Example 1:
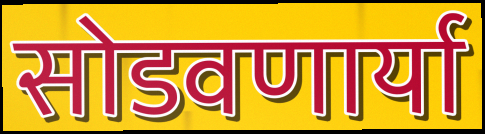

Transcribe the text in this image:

सोडवणार्या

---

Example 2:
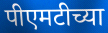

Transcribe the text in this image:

पीएमटीच्या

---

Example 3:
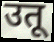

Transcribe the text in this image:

उतू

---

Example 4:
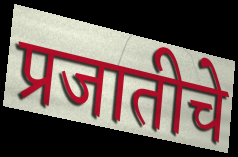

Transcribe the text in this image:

प्रजातीचे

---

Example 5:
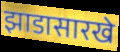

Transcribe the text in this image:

झाडासारखे